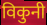
विकुनी